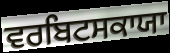
ਵਰਬਿਟਸਕਾਯਾ